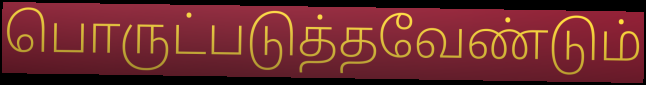
பொருட்படுத்தவேண்டும்